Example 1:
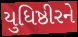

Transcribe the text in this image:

યુધિષ્ઠીરને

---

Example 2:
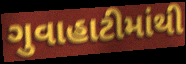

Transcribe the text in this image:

ગુવાહાટીમાંથી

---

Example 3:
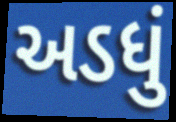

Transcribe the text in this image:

અડધું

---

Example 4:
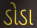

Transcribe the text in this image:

ડોડા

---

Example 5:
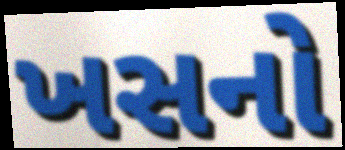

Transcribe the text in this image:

ખસનો